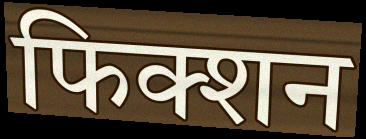
फिक्‍शन